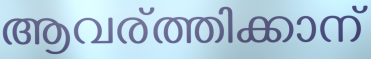
ആവര്ത്തിക്കാന്